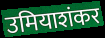
उमियाशंकर